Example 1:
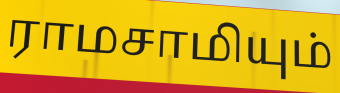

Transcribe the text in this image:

ராமசாமியும்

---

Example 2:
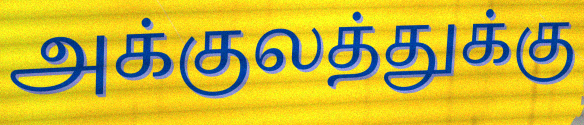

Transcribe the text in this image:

அக்குலத்துக்கு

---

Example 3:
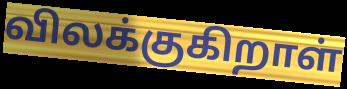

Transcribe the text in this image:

விலக்குகிறாள்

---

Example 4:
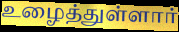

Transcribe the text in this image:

உழைத்துள்ளார்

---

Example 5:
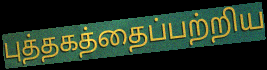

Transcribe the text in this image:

புத்தகத்தைப்பற்றிய